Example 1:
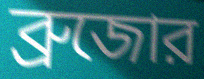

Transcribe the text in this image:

ব্রুজোর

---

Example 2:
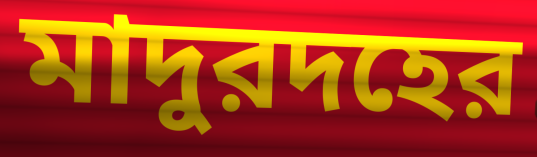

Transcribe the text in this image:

মাদুরদহের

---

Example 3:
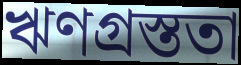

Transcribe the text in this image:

ঋণগ্রস্ততা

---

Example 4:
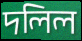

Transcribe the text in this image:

দলিল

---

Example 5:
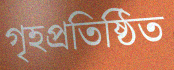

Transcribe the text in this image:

গৃহপ্রতিষ্ঠিত